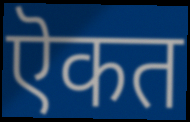
ऎकत